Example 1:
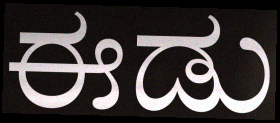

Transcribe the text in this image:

ಈಡು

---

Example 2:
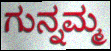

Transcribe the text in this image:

ಗುನ್ನಮ್ಮ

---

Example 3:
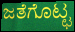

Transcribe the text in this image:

ಜತೆಗೊಟ್ಟ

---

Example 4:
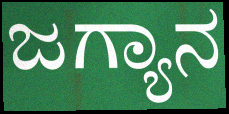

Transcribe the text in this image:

ಜಗ್ಯಾನ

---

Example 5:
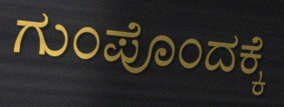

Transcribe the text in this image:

ಗುಂಪೊಂದಕ್ಕೆ